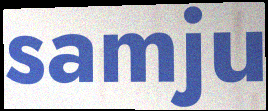
samju